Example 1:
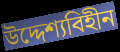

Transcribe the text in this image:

উদ্দেশ্যবিহীন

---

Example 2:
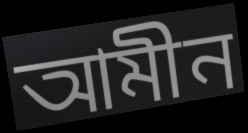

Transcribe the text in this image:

আমীন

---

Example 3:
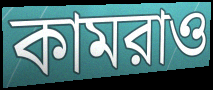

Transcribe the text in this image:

কামরাও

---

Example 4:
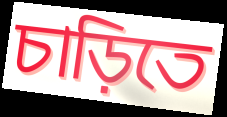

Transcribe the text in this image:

চাড়িতে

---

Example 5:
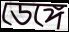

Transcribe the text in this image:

ডেঙ্গে